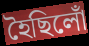
হৈছিলোঁ